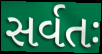
સર્વતઃ